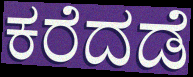
ಕರೆದಡೆ